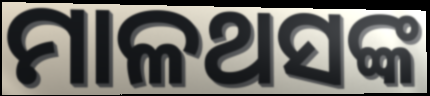
ମାଳଥସଙ୍କ